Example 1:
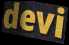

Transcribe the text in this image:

devi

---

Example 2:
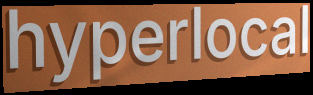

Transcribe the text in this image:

hyperlocal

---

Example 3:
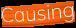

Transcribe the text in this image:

Causing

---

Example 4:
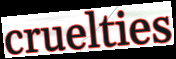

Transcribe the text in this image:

cruelties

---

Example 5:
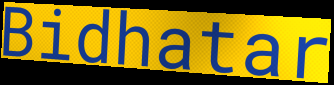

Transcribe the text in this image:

Bidhatar